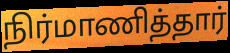
நிர்மாணித்தார்